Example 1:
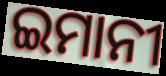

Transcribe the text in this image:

ଇମାନୀ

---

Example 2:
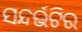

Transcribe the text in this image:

ସନ୍ଦର୍ଭଟିର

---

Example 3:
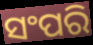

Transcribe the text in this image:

ସଂପରି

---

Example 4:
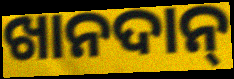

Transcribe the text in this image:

ଖାନଦାନ୍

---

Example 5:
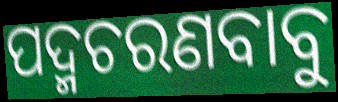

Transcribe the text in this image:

ପଦ୍ମଚରଣବାବୁ